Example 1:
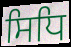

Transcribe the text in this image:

ਸਿਧਿ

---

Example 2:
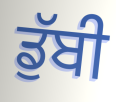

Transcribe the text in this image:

ਡੁੱਬੀ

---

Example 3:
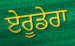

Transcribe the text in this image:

ਏਰੂਡੇਰਾ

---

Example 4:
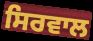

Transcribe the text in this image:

ਸਿਰਵਾਲ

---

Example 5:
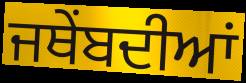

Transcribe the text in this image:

ਜਥੇਂਬਦੀਆਂ